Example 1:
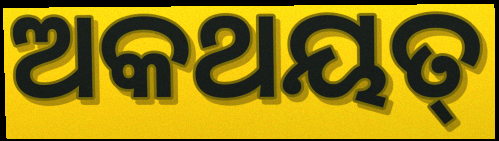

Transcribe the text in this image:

ଅକଥୟତ୍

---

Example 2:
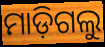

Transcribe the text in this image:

ମାଡ଼ିଗଲୁ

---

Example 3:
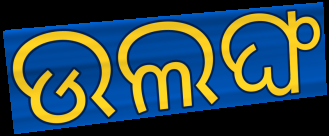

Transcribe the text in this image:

ଉଲଙ୍ଘ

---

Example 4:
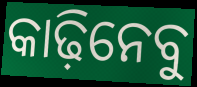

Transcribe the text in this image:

କାଢ଼ିନେବୁ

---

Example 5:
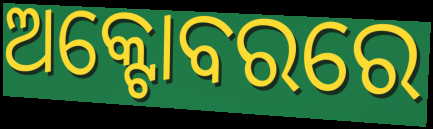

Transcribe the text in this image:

ଅକ୍ଟୋବରରେ